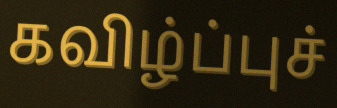
கவிழ்ப்புச்